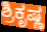
ಶ್ರಿಕೃಷ್ಣ